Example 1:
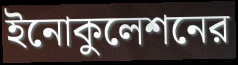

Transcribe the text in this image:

ইনোকুলেশনের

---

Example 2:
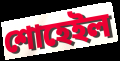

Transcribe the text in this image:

শোহেইল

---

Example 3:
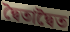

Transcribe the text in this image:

দ্বৈতাদ্বৈত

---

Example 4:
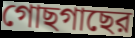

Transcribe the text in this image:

গোছগাছের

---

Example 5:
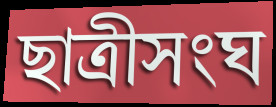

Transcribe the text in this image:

ছাত্রীসংঘ